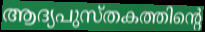
ആദ്യപുസ്തകത്തിന്റെ